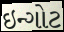
ઇન્ગોટ